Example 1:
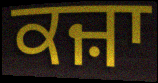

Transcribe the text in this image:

ਕਜ਼ਾ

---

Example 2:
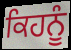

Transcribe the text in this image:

ਕਿਹਨੂੰ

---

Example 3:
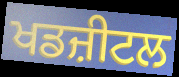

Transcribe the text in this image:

ਖਡਜ਼ੀਟਲ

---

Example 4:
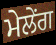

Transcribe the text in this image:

ਮੇਲੇਂਗ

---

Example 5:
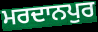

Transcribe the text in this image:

ਮਰਦਾਨਪੁਰ